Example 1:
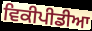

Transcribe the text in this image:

ਵਿਕੀਪੀਡੀਆ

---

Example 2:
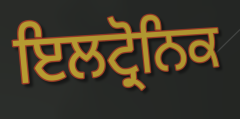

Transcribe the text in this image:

ਇਲਟ੍ਰੋਨਿਕ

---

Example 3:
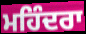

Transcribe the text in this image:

ਮਹਿੰਦਰਾ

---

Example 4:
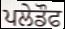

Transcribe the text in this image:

ਪਲੇਡੌਫ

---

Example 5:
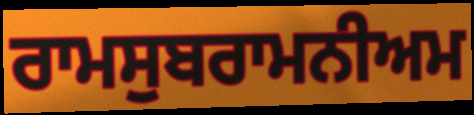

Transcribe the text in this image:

ਰਾਮਸੁਬਰਾਮਨੀਅਮ